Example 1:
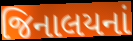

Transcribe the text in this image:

જિનાલયનાં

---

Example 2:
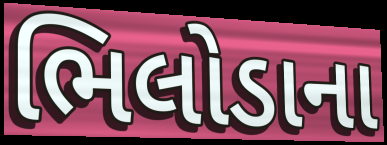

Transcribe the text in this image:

ભિલોડાના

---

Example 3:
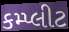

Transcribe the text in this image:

કમ્પ્લીટ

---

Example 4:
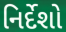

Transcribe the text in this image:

નિર્દેશો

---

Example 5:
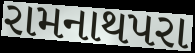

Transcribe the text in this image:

રામનાથપરા